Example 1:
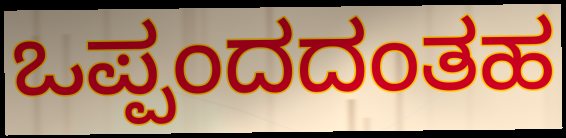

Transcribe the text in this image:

ಒಪ್ಪಂದದಂತಹ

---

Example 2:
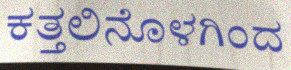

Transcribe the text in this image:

ಕತ್ತಲಿನೊಳಗಿಂದ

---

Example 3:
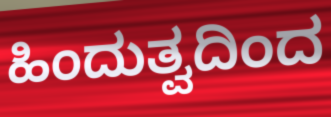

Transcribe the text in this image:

ಹಿಂದುತ್ವದಿಂದ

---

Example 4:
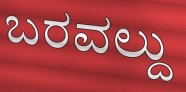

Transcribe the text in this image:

ಬರವಲ್ದು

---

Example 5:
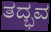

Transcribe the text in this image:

ತದ್ಭವ